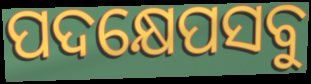
ପଦକ୍ଷେପସବୁ